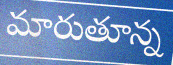
మారుతూన్న